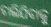
ଚାଲିଯିବାକୁ